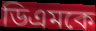
ডিএমকে